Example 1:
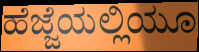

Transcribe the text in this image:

ಹೆಜ್ಜೆಯಲ್ಲಿಯೂ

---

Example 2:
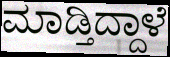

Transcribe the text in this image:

ಮಾಡ್ತಿದ್ದಾಳೆ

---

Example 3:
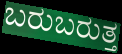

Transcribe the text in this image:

ಬರುಬರುತ್ತ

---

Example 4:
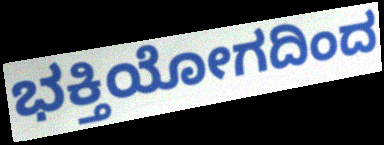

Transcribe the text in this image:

ಭಕ್ತಿಯೋಗದಿಂದ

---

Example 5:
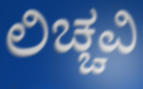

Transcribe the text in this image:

ಲಿಚ್ಚವಿ